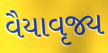
વૈયાવૃજ્ય